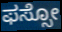
ಫಸ್ಸೋ